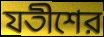
যতীশের